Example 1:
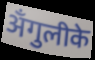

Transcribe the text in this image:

अँगुलीके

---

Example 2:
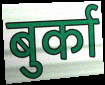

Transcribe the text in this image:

बुर्का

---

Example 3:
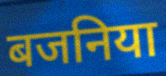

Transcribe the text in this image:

बजनिया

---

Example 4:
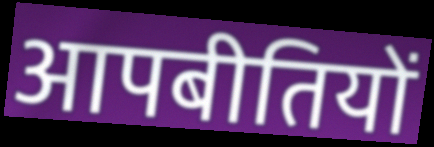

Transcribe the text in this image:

आपबीतियों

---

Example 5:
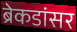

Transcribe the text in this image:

ब्रेकडांसर